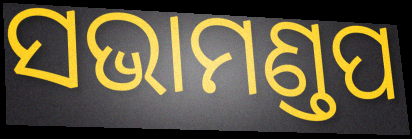
ସଭାମଣ୍ଡପ